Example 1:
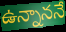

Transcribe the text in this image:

ఉన్నాననే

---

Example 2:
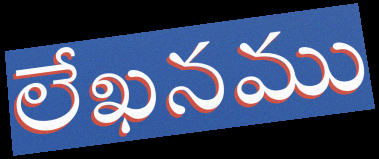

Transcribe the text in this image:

లేఖనము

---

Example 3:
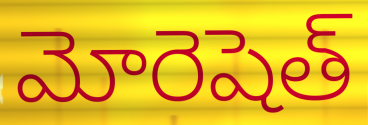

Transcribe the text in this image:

మోరెషెత్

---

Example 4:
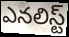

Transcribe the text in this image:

ఎనలిస్ట్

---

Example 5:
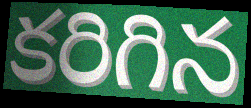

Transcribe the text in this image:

కరిగిన